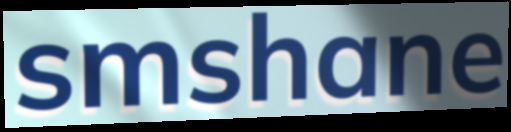
smshane